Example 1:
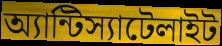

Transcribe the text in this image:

অ্যান্টিস্যাটেলাইট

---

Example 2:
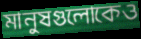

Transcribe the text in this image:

মানুষগুলোকেও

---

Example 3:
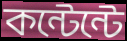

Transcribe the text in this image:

কন্টেন্টে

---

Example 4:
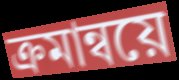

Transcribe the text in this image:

ক্রমান্বয়ে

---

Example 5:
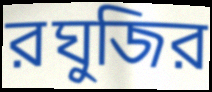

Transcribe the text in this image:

রঘুজির